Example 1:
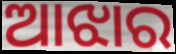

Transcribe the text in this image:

ଆଝାର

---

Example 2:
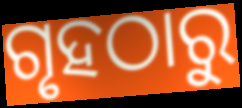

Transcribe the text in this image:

ଗୃହଠାରୁ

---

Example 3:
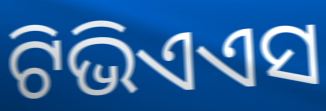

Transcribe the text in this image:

ଟିଭିଏଏସ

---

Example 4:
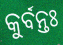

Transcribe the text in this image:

କୁର୍ବନ୍ତଃ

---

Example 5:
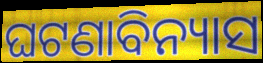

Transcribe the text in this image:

ଘଟଣାବିନ୍ୟାସ